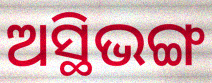
ଅସ୍ଥିଭଙ୍ଗ